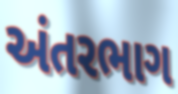
અંતરભાગ